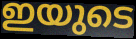
ഇയുടെ